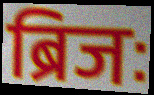
ब्रिजः